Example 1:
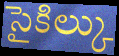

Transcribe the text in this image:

సైకిల్కు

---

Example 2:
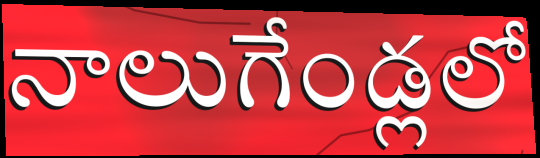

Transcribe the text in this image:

నాలుగేండ్లలో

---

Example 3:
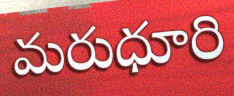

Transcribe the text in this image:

మరుధూరి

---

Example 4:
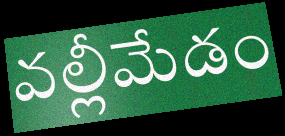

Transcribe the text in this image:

వల్లీమేడం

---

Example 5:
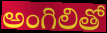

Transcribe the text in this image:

అంగిలితో